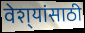
वेश्यांसाठी